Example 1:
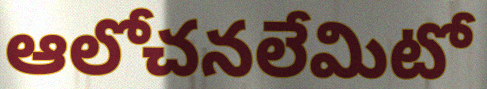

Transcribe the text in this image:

ఆలోచనలేమిటో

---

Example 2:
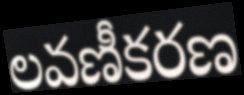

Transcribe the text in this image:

లవణీకరణ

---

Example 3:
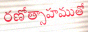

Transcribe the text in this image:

రణోత్సాహముతో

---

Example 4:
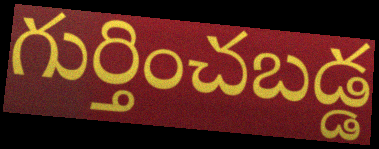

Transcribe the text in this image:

గుర్తించబడ్డ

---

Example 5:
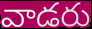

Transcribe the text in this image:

వాడరు